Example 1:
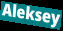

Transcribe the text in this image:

Aleksey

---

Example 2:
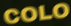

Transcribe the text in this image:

COLO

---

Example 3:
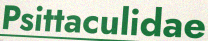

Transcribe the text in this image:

Psittaculidae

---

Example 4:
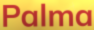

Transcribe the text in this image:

Palma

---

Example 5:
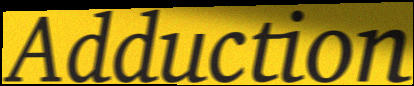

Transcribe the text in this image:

Adduction